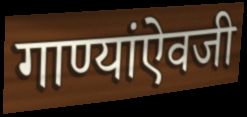
गाण्यांऐवजी